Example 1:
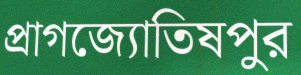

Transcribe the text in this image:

প্রাগজ্যোতিষপুর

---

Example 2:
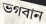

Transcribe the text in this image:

ভগবান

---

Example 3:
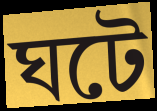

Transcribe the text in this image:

ঘটে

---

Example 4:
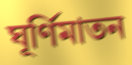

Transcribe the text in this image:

ঘূর্ণিমাতন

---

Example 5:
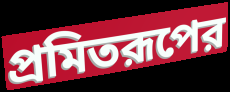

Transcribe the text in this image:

প্রমিতরূপের